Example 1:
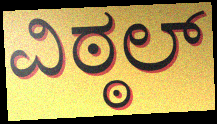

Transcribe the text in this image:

ವಿಠ್ಠಲ್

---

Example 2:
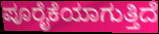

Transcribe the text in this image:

ಪೂರೈಕೆಯಾಗುತ್ತಿದೆ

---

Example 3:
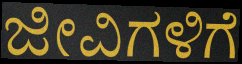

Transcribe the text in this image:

ಜೀವಿಗಳಿಗೆ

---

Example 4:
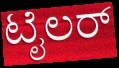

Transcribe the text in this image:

ಟೈಲರ್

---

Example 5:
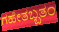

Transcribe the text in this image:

ಗಹೇತಬ್ಬತಂ